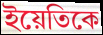
ইয়েতিকে